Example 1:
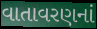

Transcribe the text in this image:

વાતાવરણનાં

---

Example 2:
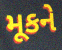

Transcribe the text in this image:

મૂકને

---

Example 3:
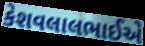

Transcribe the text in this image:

કેશવલાલભાઈએ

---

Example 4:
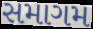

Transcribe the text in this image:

સમાગમ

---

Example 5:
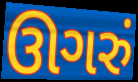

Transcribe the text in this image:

ઊગરું